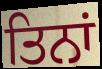
ਤਿਨਾਂ